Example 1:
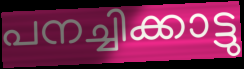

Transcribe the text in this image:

പനച്ചിക്കാട്ടു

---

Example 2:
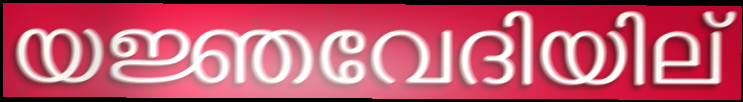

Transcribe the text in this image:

യജ്ഞവേദിയില്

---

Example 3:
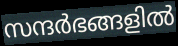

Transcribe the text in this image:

സന്ദർഭങ്ങളിൽ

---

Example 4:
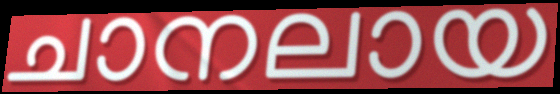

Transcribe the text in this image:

ചാനലായ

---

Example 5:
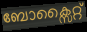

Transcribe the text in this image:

ബോക്സൈറ്റ്